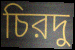
চিরদু